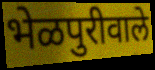
भेळपुरीवाले